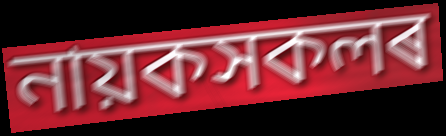
নায়কসকলৰ